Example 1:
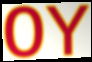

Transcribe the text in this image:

OY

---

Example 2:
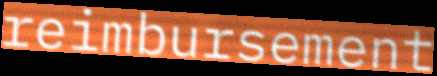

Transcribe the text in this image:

reimbursement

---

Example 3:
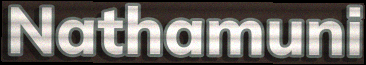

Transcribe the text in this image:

Nathamuni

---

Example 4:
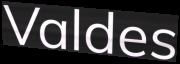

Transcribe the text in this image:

Valdes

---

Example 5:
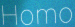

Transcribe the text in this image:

Homo